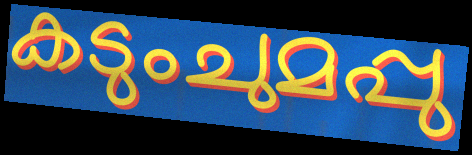
കടുംചുമപ്പു